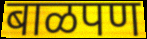
बाळपण